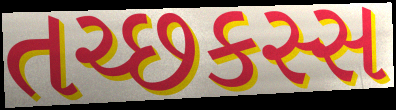
તચ્છકસ્સ